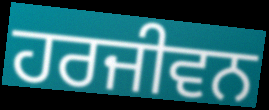
ਹਰਜੀਵਨ